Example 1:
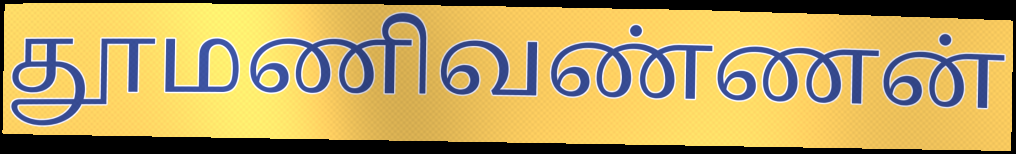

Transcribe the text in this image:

தூமணிவண்ணன்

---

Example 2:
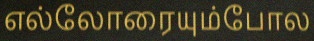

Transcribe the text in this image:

எல்லோரையும்போல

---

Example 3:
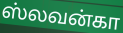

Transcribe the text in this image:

ஸ்லவன்கா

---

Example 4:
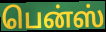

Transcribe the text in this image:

பென்ஸ்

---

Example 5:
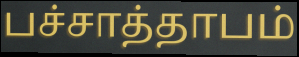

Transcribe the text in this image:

பச்சாத்தாபம்